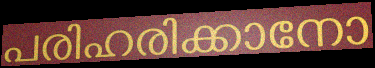
പരിഹരിക്കാനോ